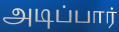
அடிப்பார்